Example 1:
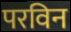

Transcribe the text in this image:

परविन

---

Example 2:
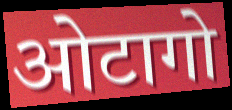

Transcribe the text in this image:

ओटागो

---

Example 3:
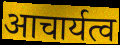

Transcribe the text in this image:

आचार्यत्व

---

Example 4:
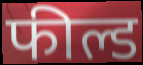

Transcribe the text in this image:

फील्‍ड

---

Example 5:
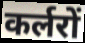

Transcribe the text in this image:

कर्लरों